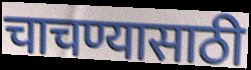
चाचण्यासाठी